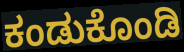
ಕಂಡುಕೊಂಡಿ